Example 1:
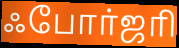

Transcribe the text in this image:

ஃபோர்ஜரி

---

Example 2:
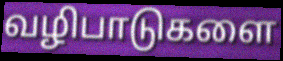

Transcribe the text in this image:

வழிபாடுகளை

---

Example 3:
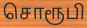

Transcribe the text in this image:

சொரூபி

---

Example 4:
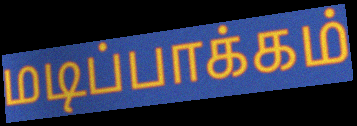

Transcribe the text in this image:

மடிப்பாக்கம்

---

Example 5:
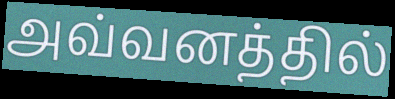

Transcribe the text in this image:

அவ்வனத்தில்